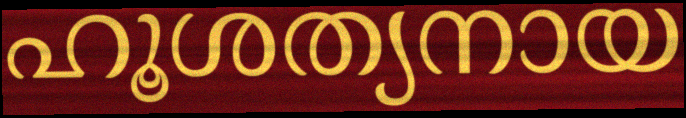
ഹൂശത്യനായ